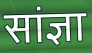
सांज्ञा